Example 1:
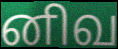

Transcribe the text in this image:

னிவ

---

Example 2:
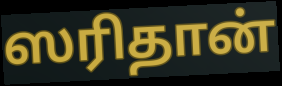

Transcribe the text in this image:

ஸரிதான்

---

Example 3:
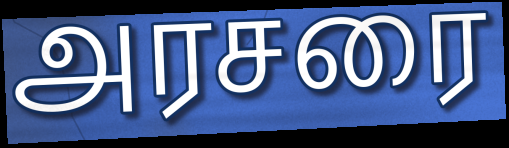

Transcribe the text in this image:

அரசரை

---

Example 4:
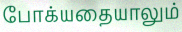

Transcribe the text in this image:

போக்யதையாலும்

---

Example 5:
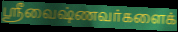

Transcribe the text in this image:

ஸ்ரீவைஷ்ணவர்களைக்